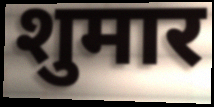
शुमार